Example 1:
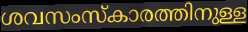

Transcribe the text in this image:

ശവസംസ്കാരത്തിനുള്ള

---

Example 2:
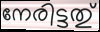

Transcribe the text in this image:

നേരിട്ടതു്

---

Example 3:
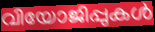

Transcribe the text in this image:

വിയോജിപ്പുകൾ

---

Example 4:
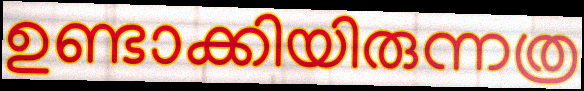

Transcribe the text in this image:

ഉണ്ടാക്കിയിരുന്നത്ര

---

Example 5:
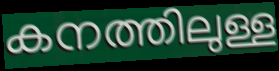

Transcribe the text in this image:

കനത്തിലുള്ള